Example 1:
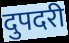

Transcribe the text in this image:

दुपदरी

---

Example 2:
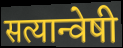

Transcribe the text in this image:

सत्यान्वेषी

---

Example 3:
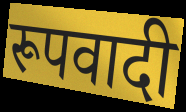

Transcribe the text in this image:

रूपवादी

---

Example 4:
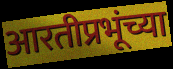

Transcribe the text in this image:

आरतीप्रभूंच्या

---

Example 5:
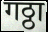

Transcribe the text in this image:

गठ्ठा